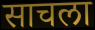
साचला